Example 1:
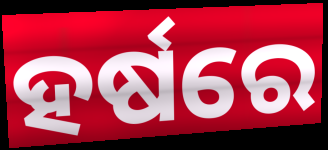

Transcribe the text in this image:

ହର୍ଷରେ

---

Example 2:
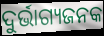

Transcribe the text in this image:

ଦୁର୍ଭାଗ୍ୟଜନକ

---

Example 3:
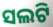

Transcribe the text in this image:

ସଲଟି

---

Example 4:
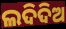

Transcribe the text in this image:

ଲଦିଦିଅ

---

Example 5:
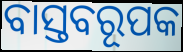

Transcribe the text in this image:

ବାସ୍ତବରୂପକ